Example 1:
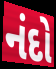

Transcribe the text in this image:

નંદો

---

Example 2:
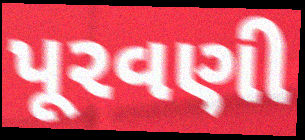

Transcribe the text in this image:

પૂરવણી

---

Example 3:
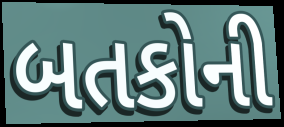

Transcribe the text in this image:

બતકોની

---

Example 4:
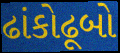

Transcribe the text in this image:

ઢાંકોઢૂબો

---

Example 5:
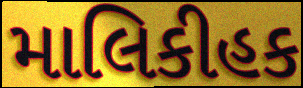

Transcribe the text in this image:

માલિકીહક